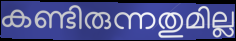
കണ്ടിരുന്നതുമില്ല